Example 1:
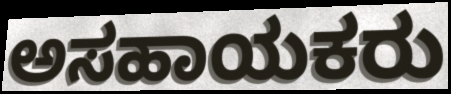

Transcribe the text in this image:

ಅಸಹಾಯಕರು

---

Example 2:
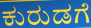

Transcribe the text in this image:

ಕುರುಡಗೆ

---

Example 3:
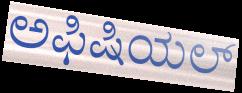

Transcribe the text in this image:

ಅಫಿಷಿಯಲ್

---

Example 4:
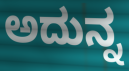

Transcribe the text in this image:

ಅದುನ್ನ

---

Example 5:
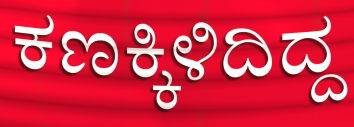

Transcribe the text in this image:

ಕಣಕ್ಕಿಳಿದಿದ್ದ